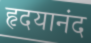
हृदयानंद